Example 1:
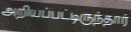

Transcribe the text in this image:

அறியப்பட்டிருந்தார்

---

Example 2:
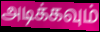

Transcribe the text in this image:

அடிக்கவும்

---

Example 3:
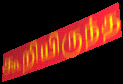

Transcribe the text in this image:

கூறியிருந்த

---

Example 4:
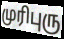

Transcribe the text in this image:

முரிபுரு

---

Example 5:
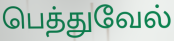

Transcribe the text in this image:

பெத்துவேல்